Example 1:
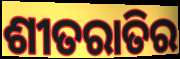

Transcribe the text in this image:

ଶୀତରାତିର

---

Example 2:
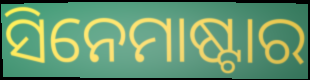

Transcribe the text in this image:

ସିନେମାଷ୍ଟାର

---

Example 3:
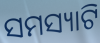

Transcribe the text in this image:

ସମସ୍ୟାଟି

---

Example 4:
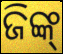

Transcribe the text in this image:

ଜିଙ୍କ୍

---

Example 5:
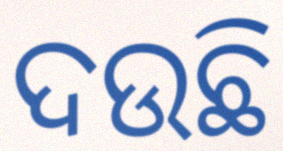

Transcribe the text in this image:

ଦଉଛି